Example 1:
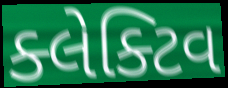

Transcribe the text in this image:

ક્લેક્ટિવ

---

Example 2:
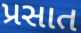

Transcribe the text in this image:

પ્રસાત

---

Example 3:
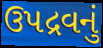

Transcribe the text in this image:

ઉપદ્રવનું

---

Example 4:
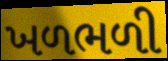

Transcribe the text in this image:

ખળભળી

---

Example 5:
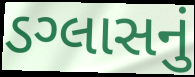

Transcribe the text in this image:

ડગ્લાસનું